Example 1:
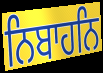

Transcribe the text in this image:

ਨਿਬਾਹਨਿ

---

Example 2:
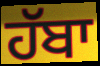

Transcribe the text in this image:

ਹੱਬਾ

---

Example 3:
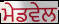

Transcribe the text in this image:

ਮੇਡਵੇਲ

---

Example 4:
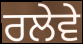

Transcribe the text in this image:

ਰਲੇਵੇ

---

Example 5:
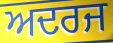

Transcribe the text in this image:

ਅਦਰਜ